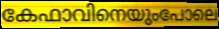
കേഫാവിനെയുംപോലെ